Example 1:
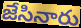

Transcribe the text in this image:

జేసినారు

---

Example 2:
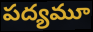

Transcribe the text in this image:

పద్యమూ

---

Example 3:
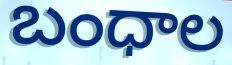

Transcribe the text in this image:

బంధాల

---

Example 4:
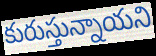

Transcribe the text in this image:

కురుస్తున్నాయని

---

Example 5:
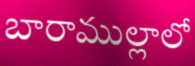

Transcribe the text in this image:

బారాముల్లాలో